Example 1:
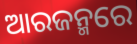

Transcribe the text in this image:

ଆରଜନ୍ମରେ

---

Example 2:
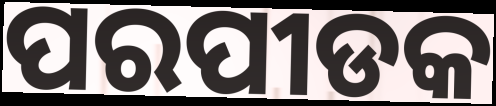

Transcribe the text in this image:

ପରପୀଡକ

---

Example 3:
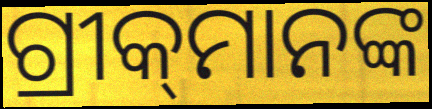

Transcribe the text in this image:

ଗ୍ରୀକ୍‌ମାନଙ୍କ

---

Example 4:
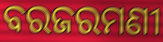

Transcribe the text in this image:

ବରଜରମଣୀ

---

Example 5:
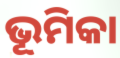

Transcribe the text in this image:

ଭୂମିକା